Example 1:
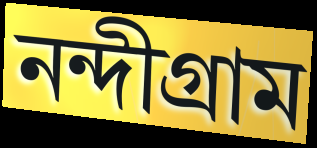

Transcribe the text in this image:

নন্দীগ্রাম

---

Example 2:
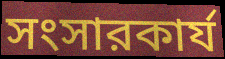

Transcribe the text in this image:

সংসারকার্য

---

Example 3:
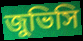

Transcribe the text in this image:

জুভিসি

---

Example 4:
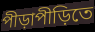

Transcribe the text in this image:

পীড়াপীড়িতে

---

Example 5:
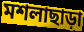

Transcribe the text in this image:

মশলাছাড়া